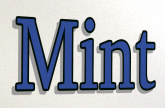
Mint